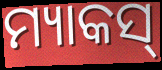
ମ୍ୟାକସ୍